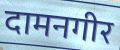
दामनगीर